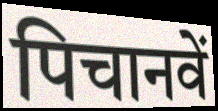
पिचानवें